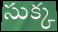
సుక్క